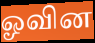
ஓவின